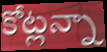
కోట్లన్నా